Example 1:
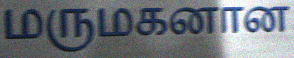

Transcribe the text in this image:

மருமகனான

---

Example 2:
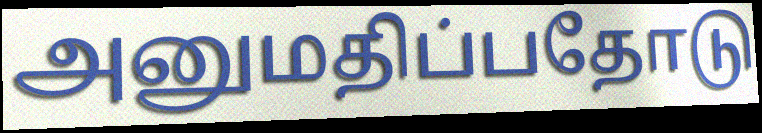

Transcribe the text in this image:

அனுமதிப்பதோடு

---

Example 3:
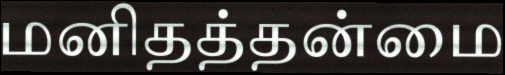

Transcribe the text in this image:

மனிதத்தன்மை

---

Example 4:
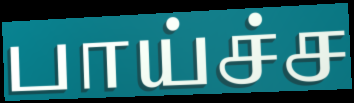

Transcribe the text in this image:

பாய்ச்ச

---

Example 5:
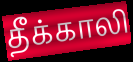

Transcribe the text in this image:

தீக்காலி